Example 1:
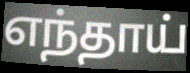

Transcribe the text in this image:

எந்தாய்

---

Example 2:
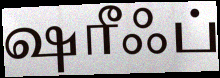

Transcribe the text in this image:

ஷரீஃப்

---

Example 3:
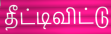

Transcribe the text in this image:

தீட்டிவிட்டு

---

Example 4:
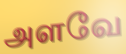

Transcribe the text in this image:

அளவே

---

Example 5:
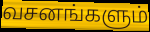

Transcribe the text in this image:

வசனங்களும்